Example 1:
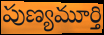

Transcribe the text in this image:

పుణ్యమూర్తి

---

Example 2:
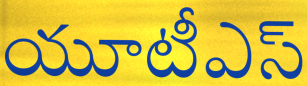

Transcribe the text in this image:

యూటీఎస్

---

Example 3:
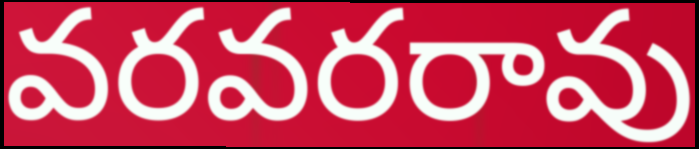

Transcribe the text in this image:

వరవరరావు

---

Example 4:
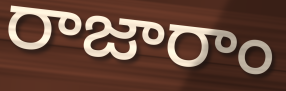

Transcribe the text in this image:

రాజారాం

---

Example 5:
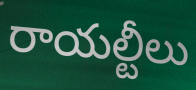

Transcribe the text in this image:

రాయల్టీలు